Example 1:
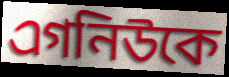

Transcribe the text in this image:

এগনিউকে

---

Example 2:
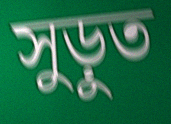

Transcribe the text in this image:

সুড়ুত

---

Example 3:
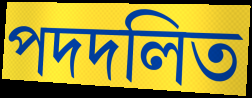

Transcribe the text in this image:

পদদলিত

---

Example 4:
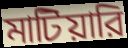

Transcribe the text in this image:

মাটিয়ারি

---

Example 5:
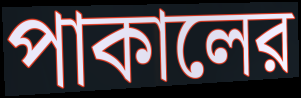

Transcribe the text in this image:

পাকালের